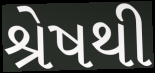
શ્રેષથી